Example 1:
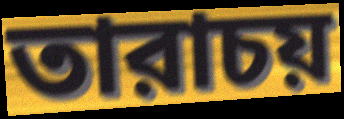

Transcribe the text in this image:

তারাচয়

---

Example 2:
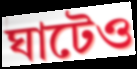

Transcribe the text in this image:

ঘাটেও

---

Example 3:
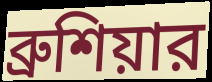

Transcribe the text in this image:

ব্রুশিয়ার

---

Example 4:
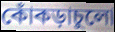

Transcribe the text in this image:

কোঁকড়াচুলো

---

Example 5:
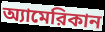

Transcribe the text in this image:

অ্যামেরিকান